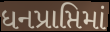
ધનપ્રાપ્તિમાં